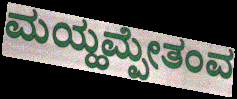
ಮಯ್ಹಮ್ಪೇತಂವ